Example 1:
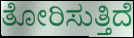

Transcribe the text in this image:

ತೋರಿಸುತ್ತಿದೆ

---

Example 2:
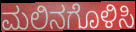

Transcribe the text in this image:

ಮಲಿನಗೊಳಿಸಿ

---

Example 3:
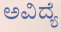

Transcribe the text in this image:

ಅವಿದ್ಯೆ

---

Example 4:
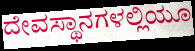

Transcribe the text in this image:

ದೇವಸ್ಥಾನಗಳಲ್ಲಿಯೂ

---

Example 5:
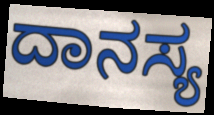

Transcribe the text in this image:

ದಾನಸ್ಯ